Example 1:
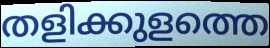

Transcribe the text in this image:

തളിക്കുളത്തെ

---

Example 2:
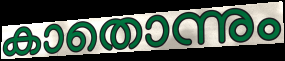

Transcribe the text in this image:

കാതൊന്നും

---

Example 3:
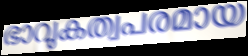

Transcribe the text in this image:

ഭാവുകത്വപരമായ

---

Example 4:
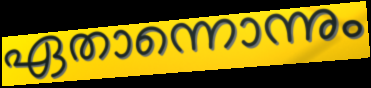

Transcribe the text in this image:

ഏതാന്നൊന്നും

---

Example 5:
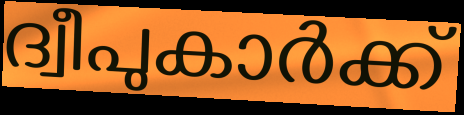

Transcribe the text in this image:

ദ്വീപുകാർക്ക്